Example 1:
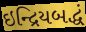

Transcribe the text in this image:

ઇન્દ્રિયબદ્ધં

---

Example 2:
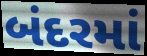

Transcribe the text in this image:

બંદરમાં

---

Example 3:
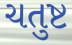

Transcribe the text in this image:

ચતુષ્ટ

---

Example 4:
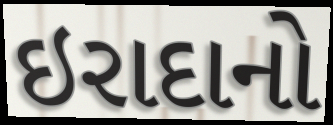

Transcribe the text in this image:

ઇરાદાનો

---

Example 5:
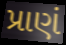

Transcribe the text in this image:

પ્રાણં